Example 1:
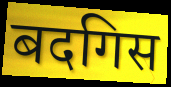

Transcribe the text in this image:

बदगिस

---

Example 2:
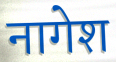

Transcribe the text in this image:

नागेश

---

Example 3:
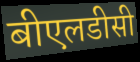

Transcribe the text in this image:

बीएलडीसी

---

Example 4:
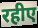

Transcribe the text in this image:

रहीए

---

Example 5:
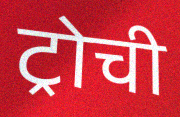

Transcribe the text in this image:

ट्रोची